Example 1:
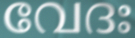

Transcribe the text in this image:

വേദഃ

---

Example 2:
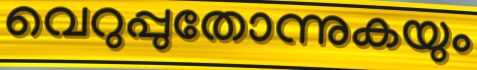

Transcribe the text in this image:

വെറുപ്പുതോന്നുകയും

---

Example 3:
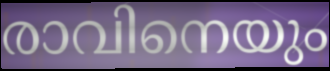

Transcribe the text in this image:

രാവിനെയും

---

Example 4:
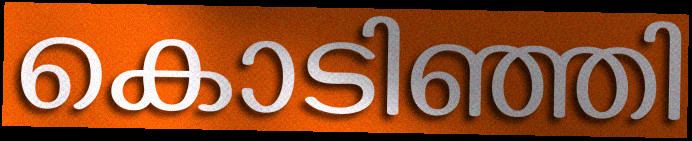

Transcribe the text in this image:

കൊടിഞ്ഞി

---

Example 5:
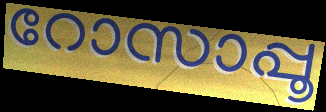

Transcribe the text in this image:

റോസാപ്പൂ